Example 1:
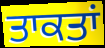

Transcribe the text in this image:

ਤਾਕਤਾਂ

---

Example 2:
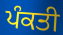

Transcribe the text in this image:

ਪੰਕਤੀ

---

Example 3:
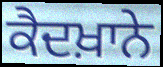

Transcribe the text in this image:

ਕੈਦਖ਼ਾਨੇ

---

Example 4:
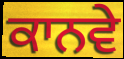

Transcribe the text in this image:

ਕਾਨਵੇ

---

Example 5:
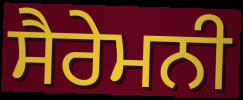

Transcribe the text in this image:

ਸੈਰੇਮਨੀ